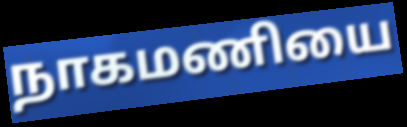
நாகமணியை